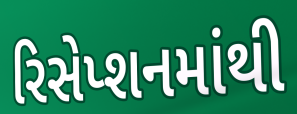
રિસેપ્શનમાંથી